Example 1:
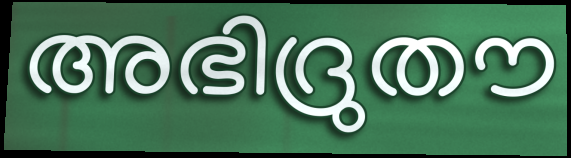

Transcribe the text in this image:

അഭിദ്രുതൗ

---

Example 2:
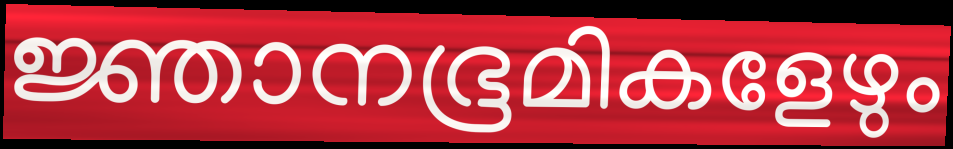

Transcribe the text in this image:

ജ്ഞാനഭൂമികളേഴും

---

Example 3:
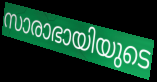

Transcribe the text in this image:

സാരാഭായിയുടെ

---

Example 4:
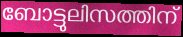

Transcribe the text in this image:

ബോട്ടുലിസത്തിന്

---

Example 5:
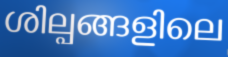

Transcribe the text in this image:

ശില്പങ്ങളിലെ